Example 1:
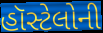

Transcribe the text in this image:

હૉસ્ટેલોની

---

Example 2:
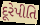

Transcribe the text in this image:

દૂરેપીતિ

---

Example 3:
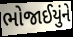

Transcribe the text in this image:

ભોજાઈયુંને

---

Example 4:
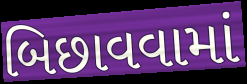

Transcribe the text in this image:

બિછાવવામાં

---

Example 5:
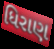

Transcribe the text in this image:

ધિરાણ